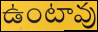
ఉంటావు